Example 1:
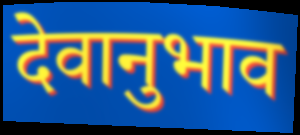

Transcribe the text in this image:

देवानुभाव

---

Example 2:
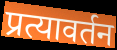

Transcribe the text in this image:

प्रत्यावर्तन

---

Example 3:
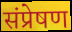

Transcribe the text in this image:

संप्रेषण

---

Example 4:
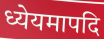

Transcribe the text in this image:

ध्येयमापदि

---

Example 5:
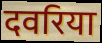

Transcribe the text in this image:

दवरिया